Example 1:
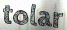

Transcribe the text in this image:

tolar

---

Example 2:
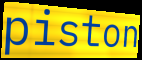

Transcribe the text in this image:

piston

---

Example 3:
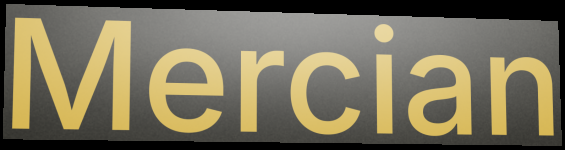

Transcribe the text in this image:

Mercian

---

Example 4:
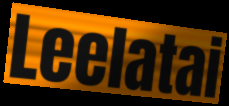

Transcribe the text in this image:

Leelatai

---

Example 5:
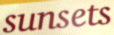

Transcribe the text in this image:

sunsets